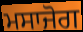
ਮਸਾਜੋਗ